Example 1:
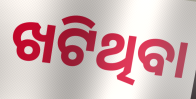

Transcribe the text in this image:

ଖଟିଥିବା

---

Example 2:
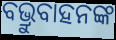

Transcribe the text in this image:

ବଭ୍ରୁବାହନଙ୍କ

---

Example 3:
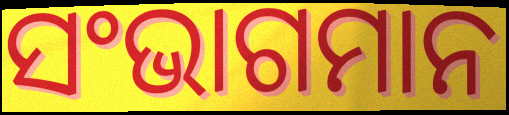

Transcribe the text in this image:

ସଂଭାଗମାନ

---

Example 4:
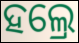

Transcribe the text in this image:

ହଲ୍ରେ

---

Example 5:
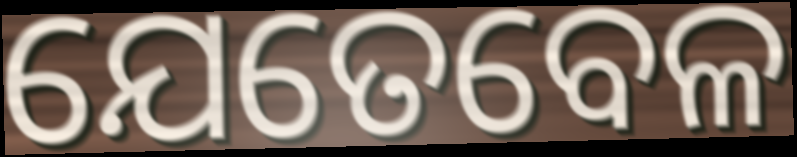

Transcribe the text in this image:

ଯେତେବେଳ